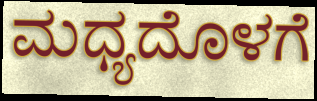
ಮಧ್ಯದೊಳಗೆ